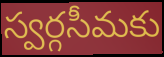
స్వర్గసీమకు